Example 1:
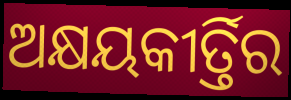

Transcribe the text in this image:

ଅକ୍ଷୟକୀର୍ତ୍ତିର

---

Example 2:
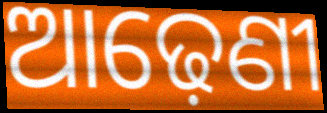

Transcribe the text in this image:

ଆଢ଼େଣୀ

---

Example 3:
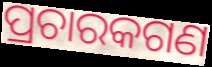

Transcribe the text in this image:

ପ୍ରଚାରକଗଣ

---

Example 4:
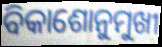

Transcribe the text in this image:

ବିକାଶୋନୁମୁଖୀ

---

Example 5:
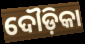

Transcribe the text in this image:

ଦୌଡ଼ିକା